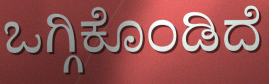
ಒಗ್ಗಿಕೊಂಡಿದೆ